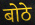
बोठे